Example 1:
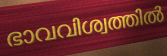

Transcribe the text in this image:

ഭാവവിശ്വത്തിൽ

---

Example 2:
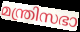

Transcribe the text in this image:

മന്ത്രിസഭാ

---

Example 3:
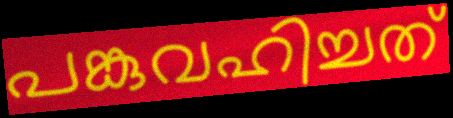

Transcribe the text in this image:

പങ്കുവഹിച്ചത്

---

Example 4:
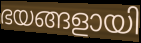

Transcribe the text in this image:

ഭയങ്ങളായി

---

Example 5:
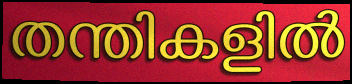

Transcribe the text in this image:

തന്തികളിൽ